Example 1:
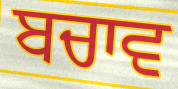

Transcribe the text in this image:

ਬਚਾਵ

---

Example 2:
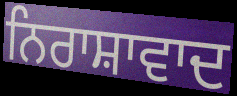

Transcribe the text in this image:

ਨਿਰਾਸ਼ਾਵਾਦ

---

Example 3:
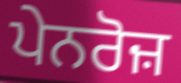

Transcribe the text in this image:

ਪੇਨਰੋਜ਼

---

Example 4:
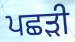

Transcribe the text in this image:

ਪਛੜੀ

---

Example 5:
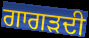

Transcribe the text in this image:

ਗਾਗੜਦੀ